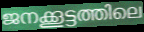
ജനക്കൂട്ടത്തിലെ